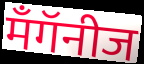
मँगॅनीज